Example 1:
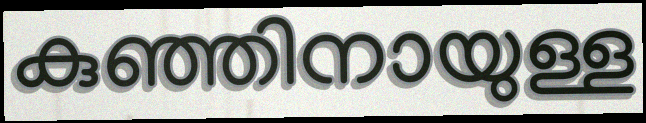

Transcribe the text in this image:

കുഞ്ഞിനായുള്ള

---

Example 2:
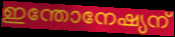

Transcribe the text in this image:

ഇന്തോനേഷ്യന്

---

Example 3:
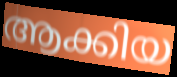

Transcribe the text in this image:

ആക്കിയ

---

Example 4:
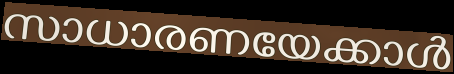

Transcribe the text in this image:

സാധാരണയേക്കാൾ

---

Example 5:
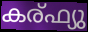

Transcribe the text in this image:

കര്ഫ്യു